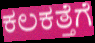
ಕಲಕತ್ತೆಗೆ